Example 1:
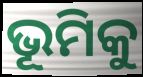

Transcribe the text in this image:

ଭୂମିକୁ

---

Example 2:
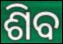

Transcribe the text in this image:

ଶିବ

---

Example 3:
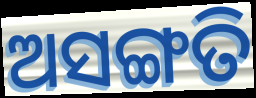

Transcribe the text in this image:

ଅସଙ୍ଗତି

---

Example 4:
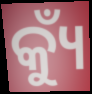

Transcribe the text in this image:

କ୍ୟୁଁ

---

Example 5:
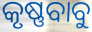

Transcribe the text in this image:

କୃଷ୍ଣବାବୁ